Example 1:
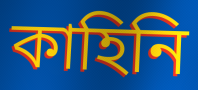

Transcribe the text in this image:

কাহিনি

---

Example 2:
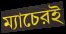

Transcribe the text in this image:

ম্যাচেরই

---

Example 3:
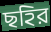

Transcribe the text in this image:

ছহির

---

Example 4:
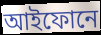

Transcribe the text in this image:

আইফোনে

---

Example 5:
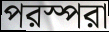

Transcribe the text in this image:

পরস্পরা